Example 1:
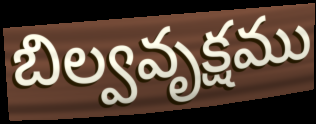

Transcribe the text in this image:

బిల్వవృక్షము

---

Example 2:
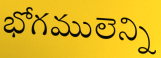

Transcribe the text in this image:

భోగములెన్ని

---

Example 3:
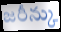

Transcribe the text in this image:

జరీన్కు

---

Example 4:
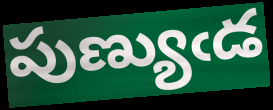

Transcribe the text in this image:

పుణ్యుఁడ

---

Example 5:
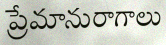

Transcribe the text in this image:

ప్రేమానురాగాలు